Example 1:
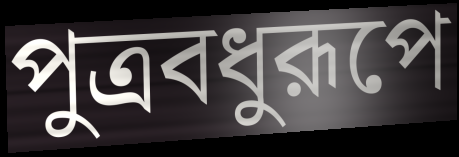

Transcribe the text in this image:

পুত্রবধুরূপে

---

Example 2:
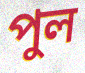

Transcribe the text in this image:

পুল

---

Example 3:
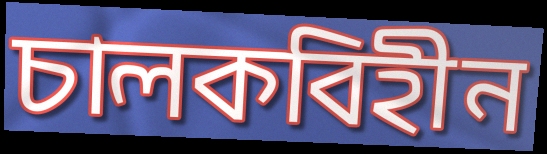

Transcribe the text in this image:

চালকবিহীন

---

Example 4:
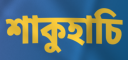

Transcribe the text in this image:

শাকুহাচি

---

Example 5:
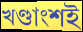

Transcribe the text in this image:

খণ্ডাংশই